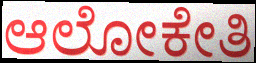
ಆಲೋಕೇತಿ